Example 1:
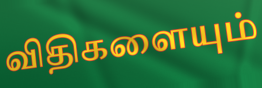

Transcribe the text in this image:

விதிகளையும்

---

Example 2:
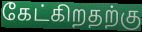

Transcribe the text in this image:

கேட்கிறதற்கு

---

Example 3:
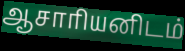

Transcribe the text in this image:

ஆசாரியனிடம்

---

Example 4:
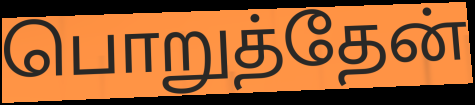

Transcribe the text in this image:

பொறுத்தேன்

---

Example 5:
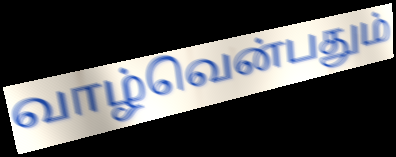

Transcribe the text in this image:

வாழ்வென்பதும்